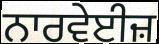
ਨਾਰਵੇਈਜ਼